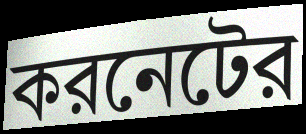
করনেটের